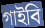
গাইবি